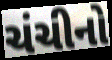
ચંચીનો